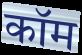
कॉम